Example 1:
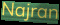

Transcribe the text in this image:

Najran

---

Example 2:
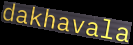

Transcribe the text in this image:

dakhavala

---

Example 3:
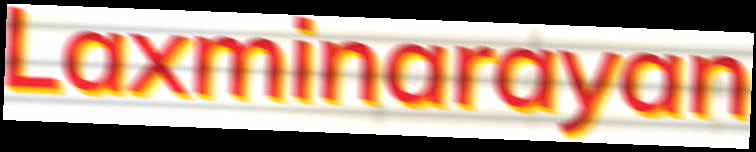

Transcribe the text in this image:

Laxminarayan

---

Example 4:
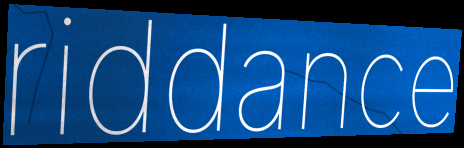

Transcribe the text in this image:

riddance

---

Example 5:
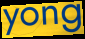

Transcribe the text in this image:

yong